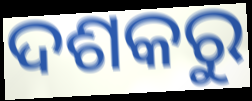
ଦଶକରୁ